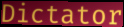
Dictator